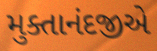
મુક્તાનંદજીએ